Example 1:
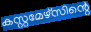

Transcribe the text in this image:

കസ്റ്റമേഴ്സിന്റെ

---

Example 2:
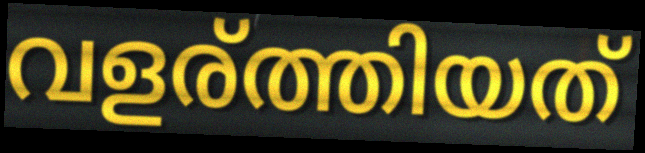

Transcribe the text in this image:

വളര്ത്തിയത്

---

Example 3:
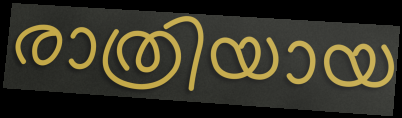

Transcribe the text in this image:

രാത്രിയായ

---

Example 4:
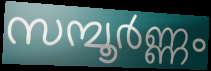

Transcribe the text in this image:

സമ്പൂർണ്ണം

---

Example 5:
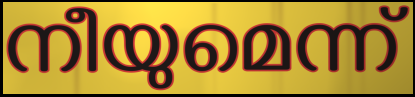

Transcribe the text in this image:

നീയുമെന്ന്